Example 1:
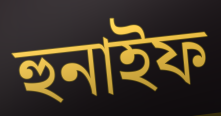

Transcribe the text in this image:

হুনাইফ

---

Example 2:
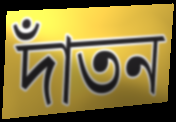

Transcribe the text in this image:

দাঁতন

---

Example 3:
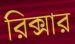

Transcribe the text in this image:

রিক্সার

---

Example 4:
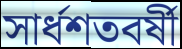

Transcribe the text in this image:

সার্ধশতবর্ষী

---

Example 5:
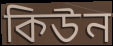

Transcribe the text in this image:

কিউন